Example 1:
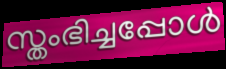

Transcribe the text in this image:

സ്തംഭിച്ചപ്പോൾ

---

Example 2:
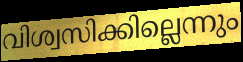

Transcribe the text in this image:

വിശ്വസിക്കില്ലെന്നും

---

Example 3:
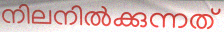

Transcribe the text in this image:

നിലനിൽക്കുന്നത്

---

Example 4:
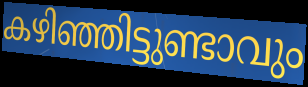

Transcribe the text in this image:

കഴിഞ്ഞിട്ടുണ്ടാവും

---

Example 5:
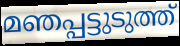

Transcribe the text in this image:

മഞപ്പട്ടുടുത്ത്